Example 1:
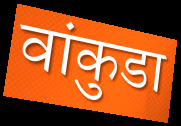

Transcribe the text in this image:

वांकुडा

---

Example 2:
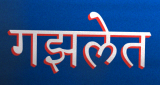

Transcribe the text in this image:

गझलेत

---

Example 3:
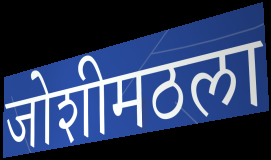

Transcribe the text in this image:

जोशीमठला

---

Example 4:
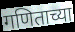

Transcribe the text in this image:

गणिताच्या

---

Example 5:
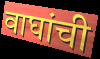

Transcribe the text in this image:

वाघांची